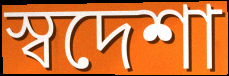
স্বদেশা